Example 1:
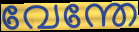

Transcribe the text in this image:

വേന്തേ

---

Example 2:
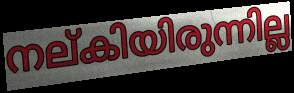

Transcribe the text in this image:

നല്കിയിരുന്നില്ല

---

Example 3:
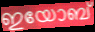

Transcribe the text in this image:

ഇയോബ്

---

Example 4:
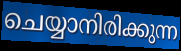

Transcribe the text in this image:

ചെയ്യാനിരിക്കുന്ന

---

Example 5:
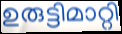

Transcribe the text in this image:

ഉരുട്ടിമാറ്റി